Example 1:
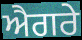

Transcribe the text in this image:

ਐਗਰੇ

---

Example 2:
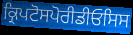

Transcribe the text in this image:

ਕ੍ਰਿਪਟੋਸਪੋਰੀਡੀਓਸਿਸ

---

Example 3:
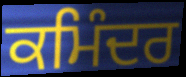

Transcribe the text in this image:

ਕਮਿੰਦਰ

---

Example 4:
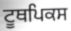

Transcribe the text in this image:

ਟੂਥਪਿਕਸ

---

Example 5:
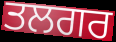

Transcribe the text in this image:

ਤਲਗਰ